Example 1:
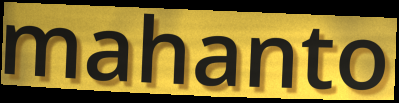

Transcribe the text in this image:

mahanto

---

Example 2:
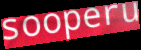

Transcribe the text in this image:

sooperu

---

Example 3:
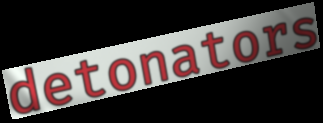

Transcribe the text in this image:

detonators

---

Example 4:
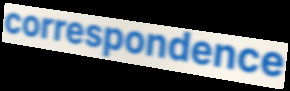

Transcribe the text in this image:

correspondence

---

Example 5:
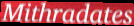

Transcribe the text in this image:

Mithradates